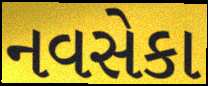
નવસેકા